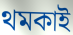
থমকাই